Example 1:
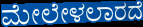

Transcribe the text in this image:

ಮೇಲೇಳಲಾರದೆ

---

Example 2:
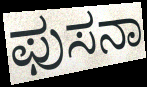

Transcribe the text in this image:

ಫುಸನಾ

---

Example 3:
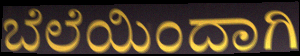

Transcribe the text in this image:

ಬೆಲೆಯಿಂದಾಗಿ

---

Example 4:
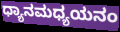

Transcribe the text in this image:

ಧ್ಯಾನಮಧ್ಯಯನಂ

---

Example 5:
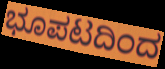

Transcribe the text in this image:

ಭೂಪಟದಿಂದ